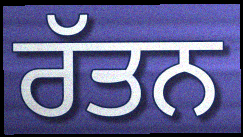
ਰੱਤਨ